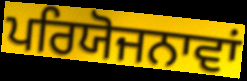
ਪਰਿਯੋਜਨਾਵਾਂ